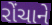
રોંચાને